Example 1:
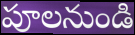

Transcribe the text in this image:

పూలనుండి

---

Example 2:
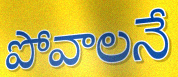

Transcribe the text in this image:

పోవాలనే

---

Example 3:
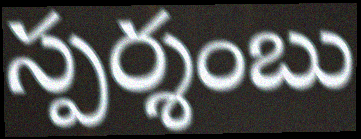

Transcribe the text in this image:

స్పర్శంబు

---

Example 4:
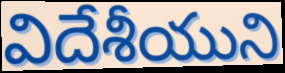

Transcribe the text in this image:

విదేశీయుని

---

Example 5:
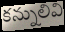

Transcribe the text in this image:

కన్నులివి